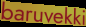
baruvekki